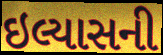
ઇલ્યાસની